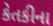
કેતકીના